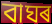
বাঘৰ